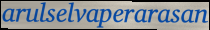
arulselvaperarasan